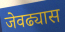
जेवढ्यास